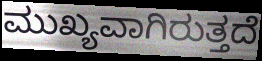
ಮುಖ್ಯವಾಗಿರುತ್ತದೆ